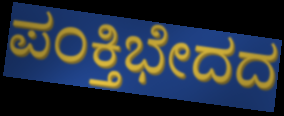
ಪಂಕ್ತಿಭೇದದ